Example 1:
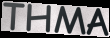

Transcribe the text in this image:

THMA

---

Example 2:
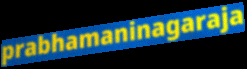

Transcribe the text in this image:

prabhamaninagaraja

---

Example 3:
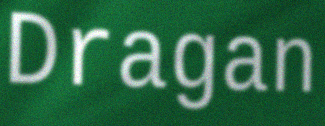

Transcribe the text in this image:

Dragan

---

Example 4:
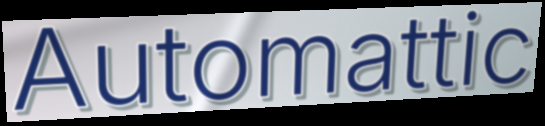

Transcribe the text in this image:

Automattic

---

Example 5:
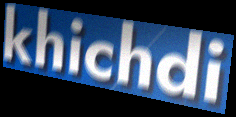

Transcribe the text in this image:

khichdi